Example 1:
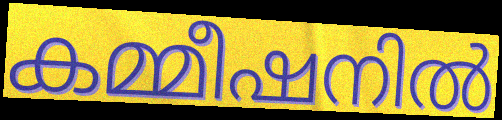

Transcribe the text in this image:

കമ്മീഷനിൽ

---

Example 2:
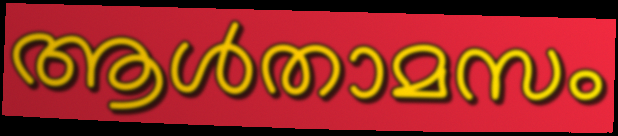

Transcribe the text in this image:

ആൾതാമസം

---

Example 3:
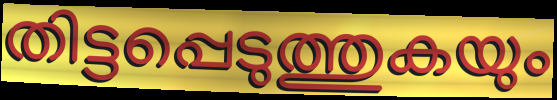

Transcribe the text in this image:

തിട്ടപ്പെടുത്തുകയും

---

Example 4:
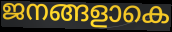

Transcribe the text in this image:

ജനങ്ങളാകെ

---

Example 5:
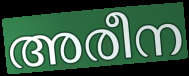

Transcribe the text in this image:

അരീന